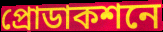
প্রোডাকশনে